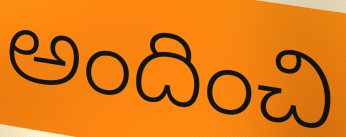
అందించి